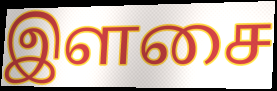
இளசை